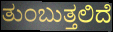
ತುಂಬುತ್ತಲಿದೆ